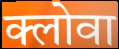
क्लोवा